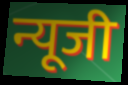
न्यूजी